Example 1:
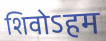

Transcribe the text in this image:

शिवोऽहम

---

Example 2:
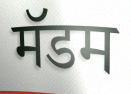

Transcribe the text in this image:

मॅडम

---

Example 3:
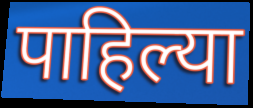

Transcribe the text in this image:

पाहिल्या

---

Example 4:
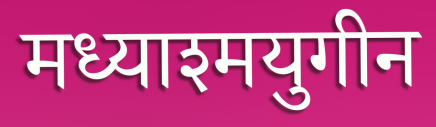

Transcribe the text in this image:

मध्याश्मयुगीन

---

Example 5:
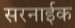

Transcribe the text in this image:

सरनाईक